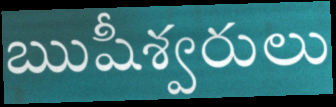
ఋషీశ్వరులు